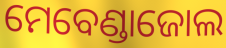
ମେବେଣ୍ଡାଜୋଲ